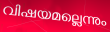
വിഷയമല്ലെന്നും